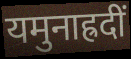
यमुनाह्रदीं